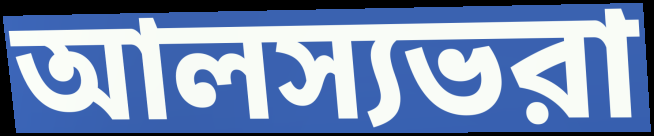
আলস্যভরা